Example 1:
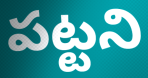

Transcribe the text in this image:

పట్టని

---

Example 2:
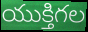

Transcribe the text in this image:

యుక్తిగల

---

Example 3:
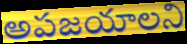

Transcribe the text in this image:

అపజయాలని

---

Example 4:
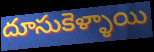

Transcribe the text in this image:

దూసుకెళ్ళాయి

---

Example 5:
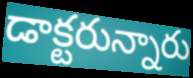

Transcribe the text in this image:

డాక్టరున్నారు